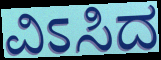
ವಿಽಸಿದ